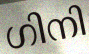
ഗിനി